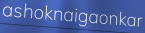
ashoknaigaonkar